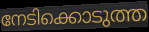
നേടിക്കൊടുത്ത